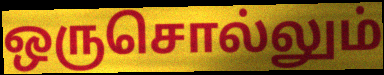
ஒருசொல்லும்